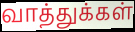
வாத்துக்கள்